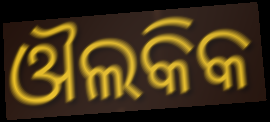
ଔଲକିକ